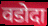
वडोदा